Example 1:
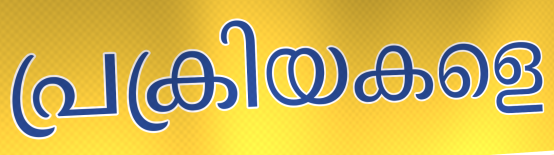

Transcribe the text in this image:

പ്രക്രിയകളെ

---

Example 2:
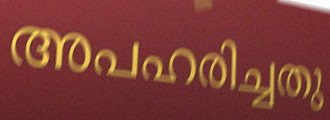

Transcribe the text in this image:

അപഹരിച്ചതു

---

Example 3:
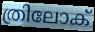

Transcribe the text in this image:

ത്രിലോക്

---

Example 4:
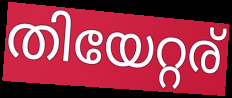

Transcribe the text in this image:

തിയേറ്റര്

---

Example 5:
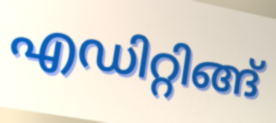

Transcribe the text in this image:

എഡിറ്റിങ്ങ്